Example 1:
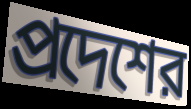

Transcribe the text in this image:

প্রদেশের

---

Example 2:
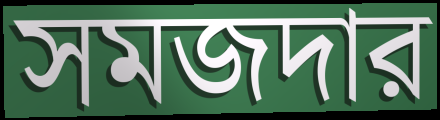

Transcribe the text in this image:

সমজদার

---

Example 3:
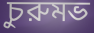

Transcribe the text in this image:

চুরুমভ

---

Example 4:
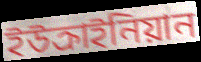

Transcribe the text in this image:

ইউক্রাইনিয়ান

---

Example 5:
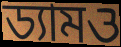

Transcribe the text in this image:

ড্যামও